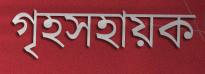
গৃহসহায়ক